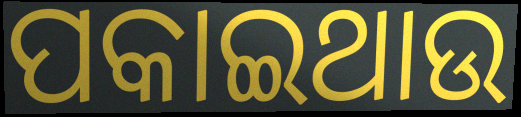
ପକାଇଥାଉ